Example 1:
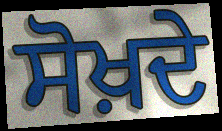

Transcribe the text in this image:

ਸੋਖ਼ਦੇ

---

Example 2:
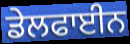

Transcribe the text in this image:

ਡੇਲਫਾਈਨ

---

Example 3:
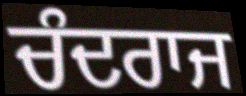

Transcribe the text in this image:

ਚੰਦਰਾਜ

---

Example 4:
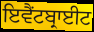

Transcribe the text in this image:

ਇਵੈਂਟਬ੍ਰਾਈਟ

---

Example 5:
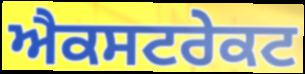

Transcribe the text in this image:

ਐਕਸਟਰੇਕਟ